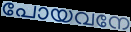
പോയവനേ